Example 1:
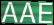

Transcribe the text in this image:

AAE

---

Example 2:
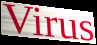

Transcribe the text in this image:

Virus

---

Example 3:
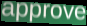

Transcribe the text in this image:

approve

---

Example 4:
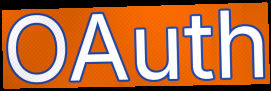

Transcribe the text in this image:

OAuth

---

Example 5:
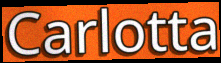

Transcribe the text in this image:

Carlotta